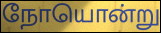
நோயொன்று